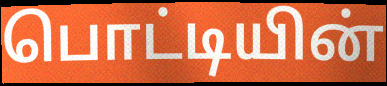
பொட்டியின்